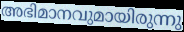
അഭിമാനവുമായിരുന്നു